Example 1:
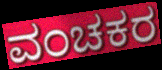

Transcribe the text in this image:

ವಂಚಕರ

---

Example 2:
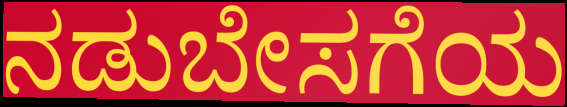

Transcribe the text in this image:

ನಡುಬೇಸಗೆಯ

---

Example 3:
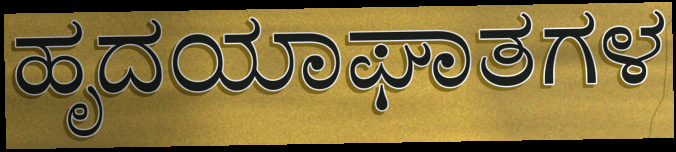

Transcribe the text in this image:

ಹೃದಯಾಘಾತಗಳ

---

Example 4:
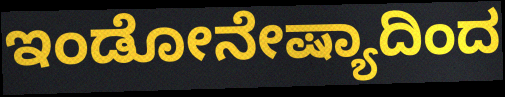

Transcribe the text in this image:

ಇಂಡೋನೇಷ್ಯಾದಿಂದ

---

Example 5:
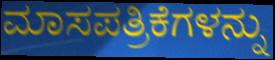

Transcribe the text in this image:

ಮಾಸಪತ್ರಿಕೆಗಳನ್ನು